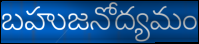
బహుజనోద్యమం